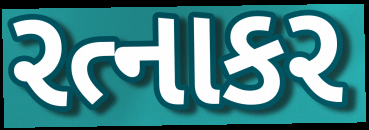
રત્નાકર